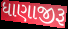
ધાણાજીરૂ